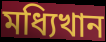
মধ্যিখান